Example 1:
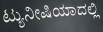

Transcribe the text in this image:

ಟ್ಯುನೀಷಿಯಾದಲ್ಲಿ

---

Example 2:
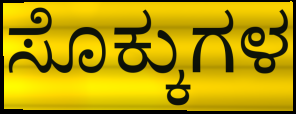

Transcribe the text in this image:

ಸೊಕ್ಕುಗಳ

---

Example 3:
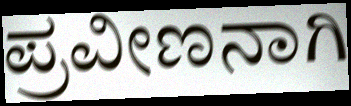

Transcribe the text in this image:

ಪ್ರವೀಣನಾಗಿ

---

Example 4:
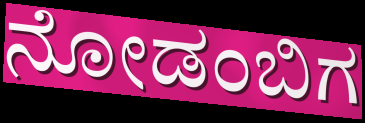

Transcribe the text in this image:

ನೋಡಂಬಿಗ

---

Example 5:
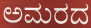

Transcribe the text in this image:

ಅಮರದ